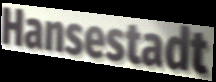
Hansestadt